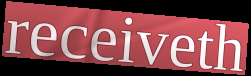
receiveth